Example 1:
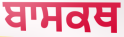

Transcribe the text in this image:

ਬਾਸਕਥ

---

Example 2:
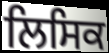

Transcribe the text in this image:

ਲਿਸਿਕ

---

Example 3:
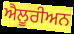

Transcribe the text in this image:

ਐਲੂਰੀਅਨ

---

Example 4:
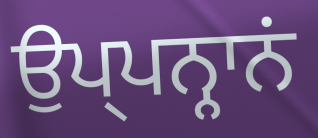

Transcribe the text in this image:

ਉਪ੍ਪਨ੍ਨਾਨਂ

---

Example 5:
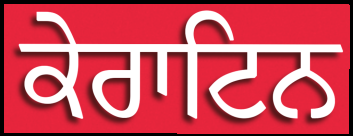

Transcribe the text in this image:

ਕੇਰਾਟਿਨ